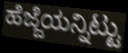
ಹೆಜ್ಜೆಯನ್ನಿಟ್ಟು